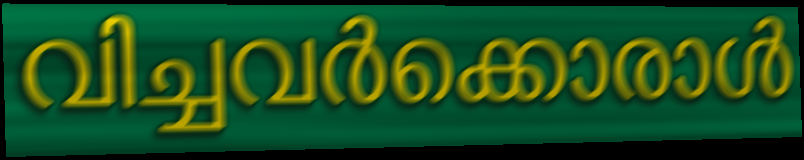
വിച്ചവർക്കൊരാൾ